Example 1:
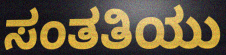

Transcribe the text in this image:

ಸಂತತಿಯು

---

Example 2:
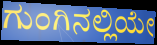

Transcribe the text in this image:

ಗುಂಗಿನಲ್ಲಿಯೇ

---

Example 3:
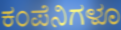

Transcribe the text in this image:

ಕಂಪೆನಿಗಳೂ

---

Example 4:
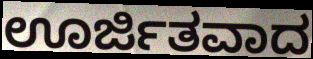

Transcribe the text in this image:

ಊರ್ಜಿತವಾದ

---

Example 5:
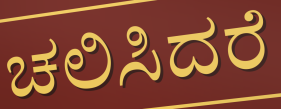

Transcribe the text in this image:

ಚಲಿಸಿದರೆ